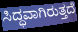
ಸಿದ್ಧವಾಗಿರುತ್ತದೆ